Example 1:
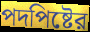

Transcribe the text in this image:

পদপিষ্টের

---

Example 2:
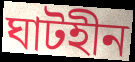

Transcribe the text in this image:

ঘাটহীন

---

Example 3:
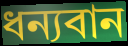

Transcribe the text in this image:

ধন্যবান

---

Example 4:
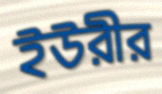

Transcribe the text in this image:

ইউরীর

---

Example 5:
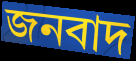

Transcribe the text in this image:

জনবাদ